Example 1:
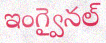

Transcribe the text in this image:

ఇంగ్వైనల్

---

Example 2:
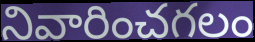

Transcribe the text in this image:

నివారించగలం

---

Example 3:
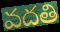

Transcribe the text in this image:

వదతి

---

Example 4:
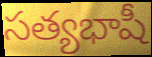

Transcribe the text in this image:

సత్యభాషీ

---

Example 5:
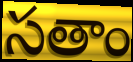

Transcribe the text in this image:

సతాం